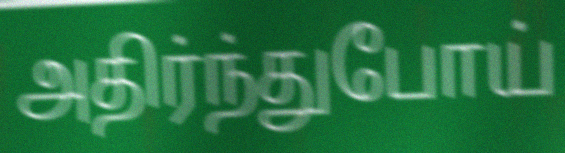
அதிர்ந்துபோய்